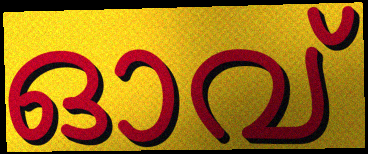
ഓവ്